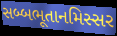
સબ્બભૂતાનમિસ્સર